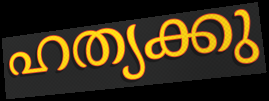
ഹത്യക്കു